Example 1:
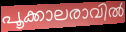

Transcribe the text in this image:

പൂക്കാലരാവിൽ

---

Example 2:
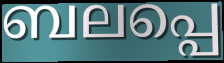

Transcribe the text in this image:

ബലപ്പെ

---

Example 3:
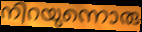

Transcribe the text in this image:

നിറയുന്നൊരു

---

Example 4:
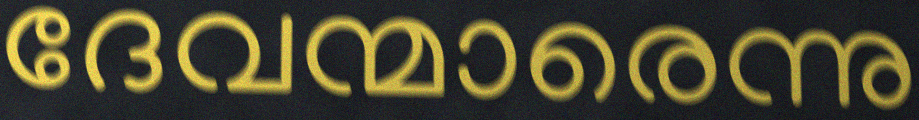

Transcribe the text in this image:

ദേവന്മാരെന്നു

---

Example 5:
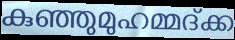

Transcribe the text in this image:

കുഞ്ഞുമുഹമ്മദ്ക്ക